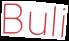
Buli